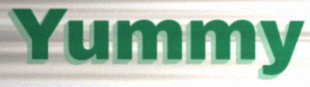
Yummy